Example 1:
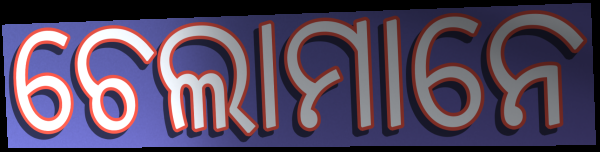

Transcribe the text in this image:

ଚେଲାମାନେ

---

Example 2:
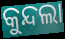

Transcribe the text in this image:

କୁନ୍ଦଲା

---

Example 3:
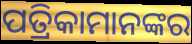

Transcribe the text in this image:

ପତ୍ରିକାମାନଙ୍କର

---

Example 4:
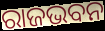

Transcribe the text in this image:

ରାଜଭବନ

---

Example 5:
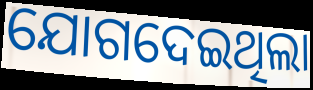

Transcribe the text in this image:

ଯୋଗଦେଇଥିଲା